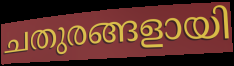
ചതുരങ്ങളായി